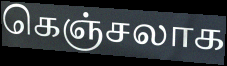
கெஞ்சலாக